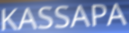
KASSAPA